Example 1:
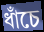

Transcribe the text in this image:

ধাঁচে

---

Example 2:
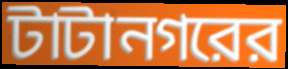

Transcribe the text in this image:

টাটানগরের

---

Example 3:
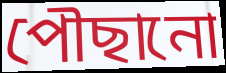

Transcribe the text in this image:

পৌছানো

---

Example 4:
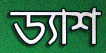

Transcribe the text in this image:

ড্যাশ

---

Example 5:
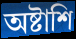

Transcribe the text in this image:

অষ্টাশি